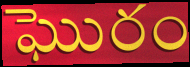
ఘొరం